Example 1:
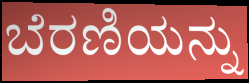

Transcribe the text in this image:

ಬೆರಣಿಯನ್ನು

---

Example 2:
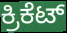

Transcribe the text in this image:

ಕ್ರಿಕೆಟ್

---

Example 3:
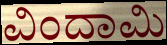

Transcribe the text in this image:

ವಿಂದಾಮಿ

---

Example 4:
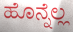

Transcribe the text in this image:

ಹೊನ್ನೆಲ್ಲ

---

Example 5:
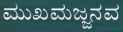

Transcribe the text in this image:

ಮುಖಮಜ್ಜನವ